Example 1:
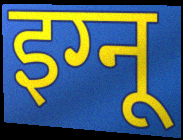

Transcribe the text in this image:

इग्‍नू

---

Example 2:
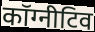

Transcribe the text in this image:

कॉग्नीटिव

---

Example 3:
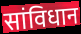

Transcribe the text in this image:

सांविधान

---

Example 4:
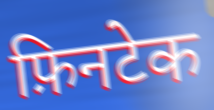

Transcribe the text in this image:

फ़िनटेक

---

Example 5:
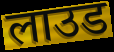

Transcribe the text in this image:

लाउड